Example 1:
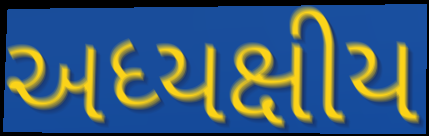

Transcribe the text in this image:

અધ્યક્ષીય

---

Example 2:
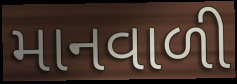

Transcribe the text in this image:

માનવાળી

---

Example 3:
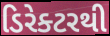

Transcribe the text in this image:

ડિરેક્ટરથી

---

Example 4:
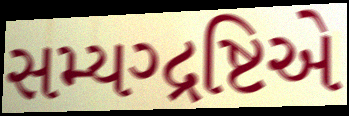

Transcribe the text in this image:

સમ્યગ્દ્રષ્ટિએ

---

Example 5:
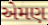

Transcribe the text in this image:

એમણ